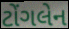
ટોંગલેન